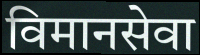
विमानसेवा